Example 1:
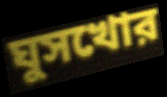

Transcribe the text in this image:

ঘুসখোর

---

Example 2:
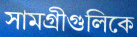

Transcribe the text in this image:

সামগ্রীগুলিকে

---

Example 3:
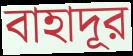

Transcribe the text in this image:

বাহাদূর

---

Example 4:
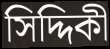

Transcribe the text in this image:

সিদ্দিকী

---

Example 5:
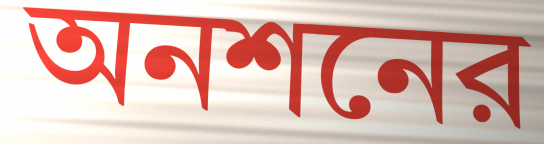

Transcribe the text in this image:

অনশনের